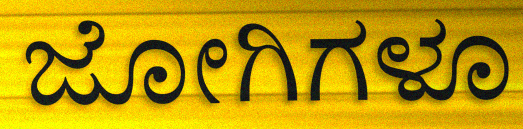
ಜೋಗಿಗಳೂ